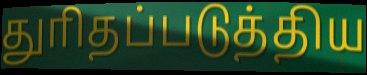
துரிதப்படுத்திய